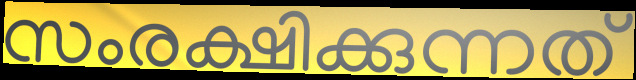
സംരക്ഷിക്കുന്നത്